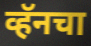
व्हॅनचा